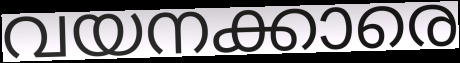
വയനക്കാരെ